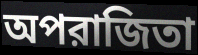
অপরাজিতা